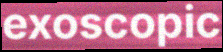
exoscopic